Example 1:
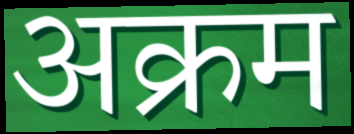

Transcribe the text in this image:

अक्रम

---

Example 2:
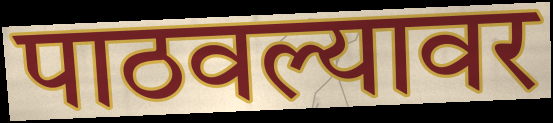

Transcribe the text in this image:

पाठवल्यावर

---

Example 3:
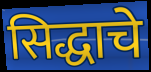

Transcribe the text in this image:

सिद्धाचे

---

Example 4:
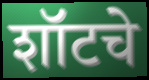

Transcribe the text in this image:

शॉटचे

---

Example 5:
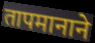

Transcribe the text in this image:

तापमानाने